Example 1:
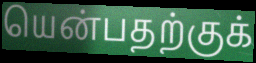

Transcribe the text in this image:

யென்பதற்குக்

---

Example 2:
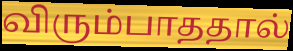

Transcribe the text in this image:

விரும்பாததால்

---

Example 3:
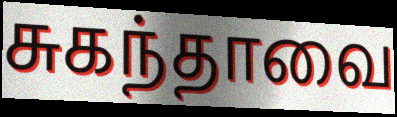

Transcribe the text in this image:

சுகந்தாவை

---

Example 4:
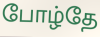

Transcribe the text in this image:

போழ்தே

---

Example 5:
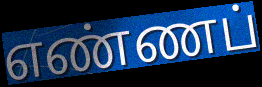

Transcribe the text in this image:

எண்ணப்